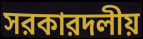
সরকারদলীয়